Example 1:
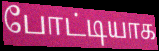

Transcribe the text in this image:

போட்டியாக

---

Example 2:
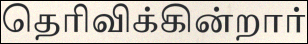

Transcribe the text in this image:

தெரிவிக்கின்றார்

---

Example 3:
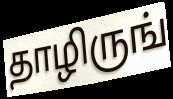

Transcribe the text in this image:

தாழிருங்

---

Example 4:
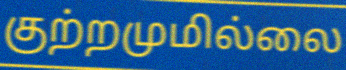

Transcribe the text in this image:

குற்றமுமில்லை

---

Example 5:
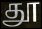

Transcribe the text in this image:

தூ